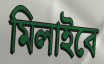
মিলাইবে